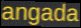
angada